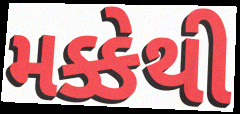
મક્કેથી